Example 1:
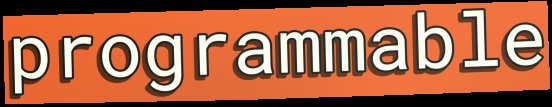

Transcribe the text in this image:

programmable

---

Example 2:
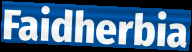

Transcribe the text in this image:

Faidherbia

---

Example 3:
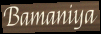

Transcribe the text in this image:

Bamaniya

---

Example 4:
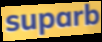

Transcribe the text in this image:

suparb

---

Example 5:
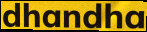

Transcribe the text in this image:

dhandha